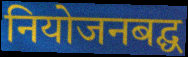
नियोजनबद्घ